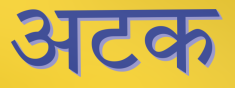
अटक